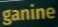
ganine